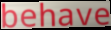
behave